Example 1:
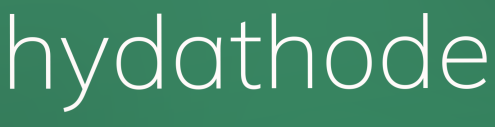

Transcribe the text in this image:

hydathode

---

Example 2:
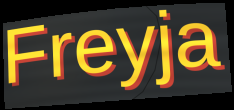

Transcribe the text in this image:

Freyja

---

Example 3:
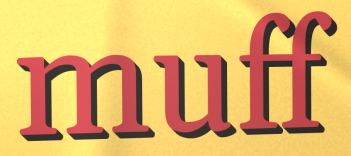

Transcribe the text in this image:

muff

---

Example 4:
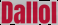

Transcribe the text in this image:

Dallol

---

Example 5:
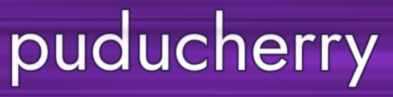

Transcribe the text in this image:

puducherry